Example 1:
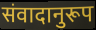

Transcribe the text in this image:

संवादानुरूप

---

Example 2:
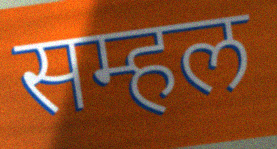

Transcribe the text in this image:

सम्हल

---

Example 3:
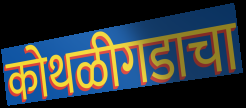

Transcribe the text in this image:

कोथळीगडाचा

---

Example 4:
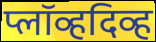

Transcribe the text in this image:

प्लॉव्हदिव्ह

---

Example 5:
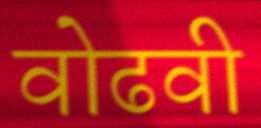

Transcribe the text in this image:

वोढवी